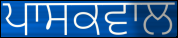
ਪਾਸਕਵਾਲ